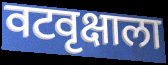
वटवृक्षाला